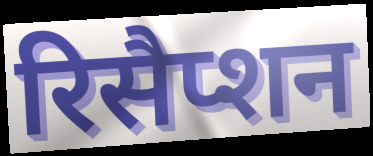
रिसैप्शन